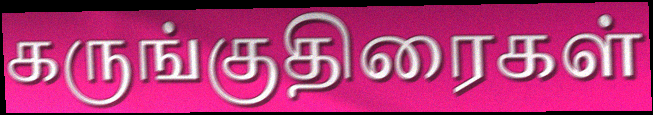
கருங்குதிரைகள்